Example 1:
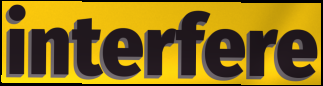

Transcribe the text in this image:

interfere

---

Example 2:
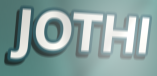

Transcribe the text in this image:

JOTHI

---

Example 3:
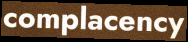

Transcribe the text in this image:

complacency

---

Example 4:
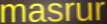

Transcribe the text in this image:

masrur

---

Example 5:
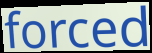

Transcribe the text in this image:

forced